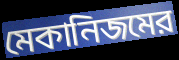
মেকানিজমের